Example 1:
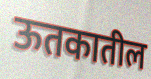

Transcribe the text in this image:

ऊतकातील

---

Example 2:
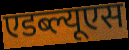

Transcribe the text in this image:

एडब्ल्यूएस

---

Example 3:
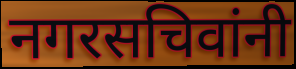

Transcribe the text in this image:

नगरसचिवांनी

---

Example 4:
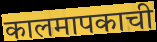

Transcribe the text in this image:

कालमापकाची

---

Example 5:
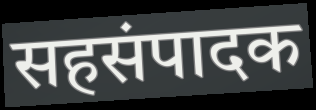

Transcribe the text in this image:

सहसंपादक